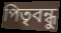
পিতৃবন্ধু